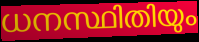
ധനസ്ഥിതിയും